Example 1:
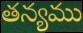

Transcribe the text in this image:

తన్యము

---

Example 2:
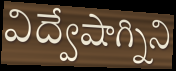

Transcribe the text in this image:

విద్వేషాగ్నిని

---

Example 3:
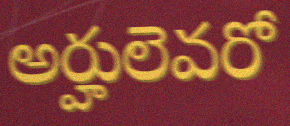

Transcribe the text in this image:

అర్హులెవరో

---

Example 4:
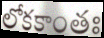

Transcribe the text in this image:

లోకకాంతః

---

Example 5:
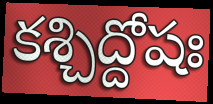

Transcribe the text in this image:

కశ్చిద్దోషః